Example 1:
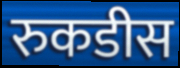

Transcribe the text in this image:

रुकडीस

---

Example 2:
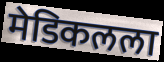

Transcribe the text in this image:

मेडिकलला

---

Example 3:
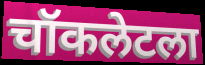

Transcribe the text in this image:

चॉकलेटला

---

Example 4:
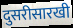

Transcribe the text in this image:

दुसरीसारखी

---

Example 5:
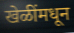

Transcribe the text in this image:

खेळींमधून